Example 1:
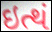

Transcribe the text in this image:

ઇત્થં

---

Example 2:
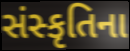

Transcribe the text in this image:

સંસ્કૃતિના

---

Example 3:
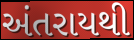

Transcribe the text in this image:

અંતરાયથી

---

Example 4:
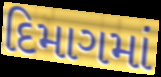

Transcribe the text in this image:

દિમાગમાં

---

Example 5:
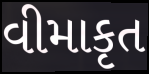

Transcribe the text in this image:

વીમાકૃત